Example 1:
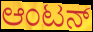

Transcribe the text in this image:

ಆಂಟನ್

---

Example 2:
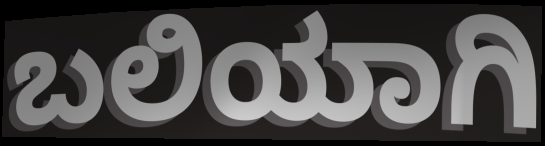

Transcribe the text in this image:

ಬಲಿಯಾಗಿ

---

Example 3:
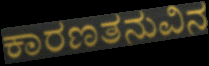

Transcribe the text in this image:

ಕಾರಣತನುವಿನ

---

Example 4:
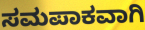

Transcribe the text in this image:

ಸಮಪಾಕವಾಗಿ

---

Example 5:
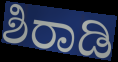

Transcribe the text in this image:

ಶಿರಾಡಿ